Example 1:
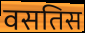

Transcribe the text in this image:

वसतिस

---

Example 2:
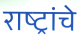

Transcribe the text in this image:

राष्ट्रांचे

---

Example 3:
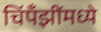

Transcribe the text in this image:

चिंपँझींमध्ये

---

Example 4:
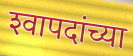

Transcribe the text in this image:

श्‍वापदांच्या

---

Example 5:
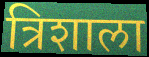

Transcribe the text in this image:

त्रिशाला